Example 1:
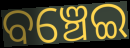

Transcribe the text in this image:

ବଞ୍ଚେଇ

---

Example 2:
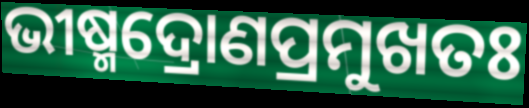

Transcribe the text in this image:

ଭୀଷ୍ମଦ୍ରୋଣପ୍ରମୁଖତଃ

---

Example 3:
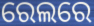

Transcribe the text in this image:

ରେଲରେ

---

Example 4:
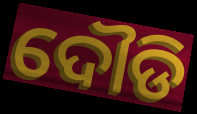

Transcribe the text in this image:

ଦୌଡି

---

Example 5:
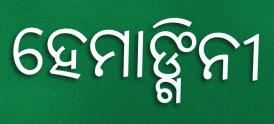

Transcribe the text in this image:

ହେମାଙ୍ଗିନୀ